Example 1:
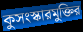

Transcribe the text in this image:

কুসংস্কারমুক্তির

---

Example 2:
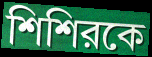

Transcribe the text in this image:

শিশিরকে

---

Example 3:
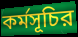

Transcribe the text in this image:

কর্মসূচির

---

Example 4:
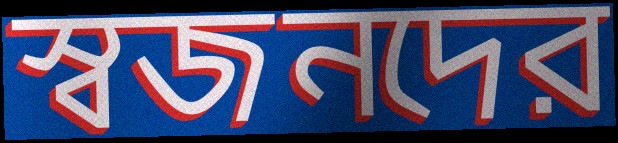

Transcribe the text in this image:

স্বজনদের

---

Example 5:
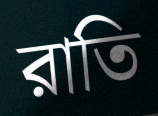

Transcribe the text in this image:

রাতি